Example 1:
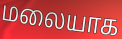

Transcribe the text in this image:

மலையாக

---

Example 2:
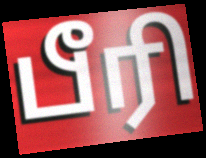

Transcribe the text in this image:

பீரி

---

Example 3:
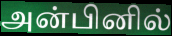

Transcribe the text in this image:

அன்பினில்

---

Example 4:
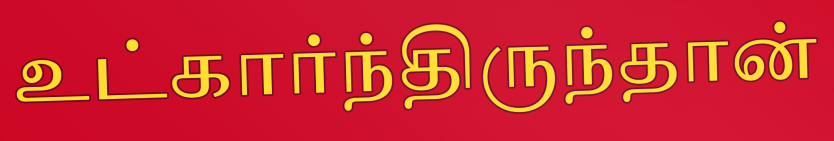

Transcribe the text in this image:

உட்கார்ந்திருந்தான்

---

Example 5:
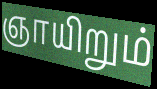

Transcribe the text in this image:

ஞாயிறும்